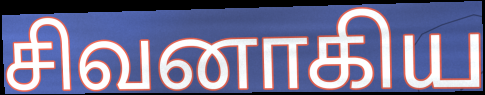
சிவனாகிய